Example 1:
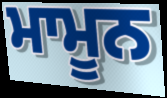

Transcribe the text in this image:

ਮਾਮੂਨ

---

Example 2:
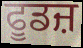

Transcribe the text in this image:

ਫੂਡਜ਼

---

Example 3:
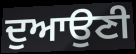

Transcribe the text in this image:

ਦੁਆਉਣੀ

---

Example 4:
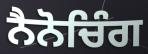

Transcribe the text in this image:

ਨੈਨੋਚਿੰਗ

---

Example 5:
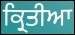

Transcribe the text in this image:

ਕ੍ਰਿਤੀਆ